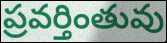
ప్రవర్తింతువు